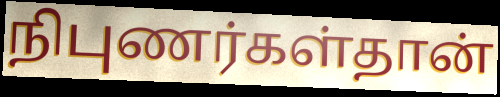
நிபுணர்கள்தான்